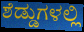
ಶೆಡ್ಡುಗಳಲ್ಲಿ